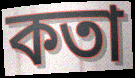
কতা